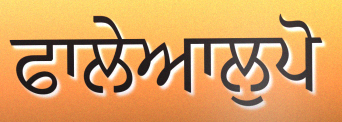
ਫਾਲੇਆਲੁਪੋ